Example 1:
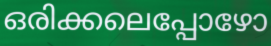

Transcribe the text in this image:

ഒരിക്കലെപ്പോഴോ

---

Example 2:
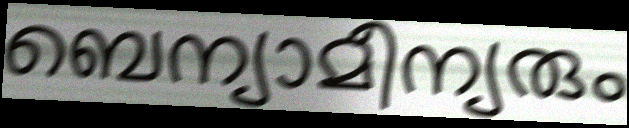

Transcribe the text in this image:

ബെന്യാമീന്യരും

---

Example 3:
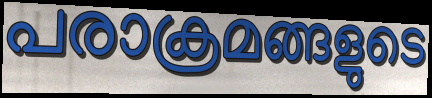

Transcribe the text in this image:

പരാക്രമങ്ങളുടെ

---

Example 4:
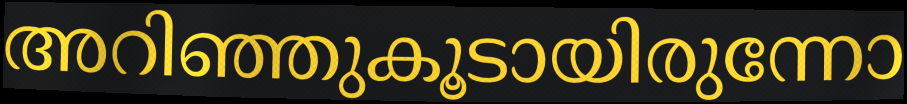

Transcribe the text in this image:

അറിഞ്ഞുകൂടായിരുന്നോ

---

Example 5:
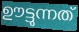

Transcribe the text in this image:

ഊട്ടുന്നത്